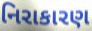
નિરાકારણ